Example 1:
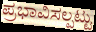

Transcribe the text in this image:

ಪ್ರಭಾವಿಸಲ್ಪಟ್ಟು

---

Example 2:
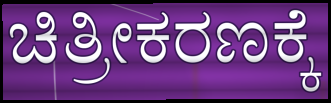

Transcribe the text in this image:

ಚಿತ್ರೀಕರಣಕ್ಕೆ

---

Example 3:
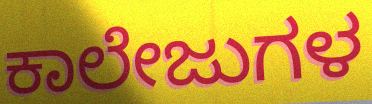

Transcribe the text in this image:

ಕಾಲೇಜುಗಳ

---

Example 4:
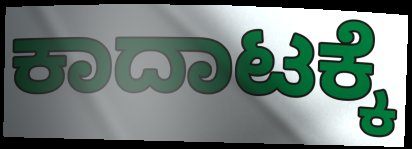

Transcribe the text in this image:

ಕಾದಾಟಕ್ಕೆ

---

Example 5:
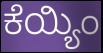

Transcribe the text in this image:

ಕೆಯ್ಯಿಂ